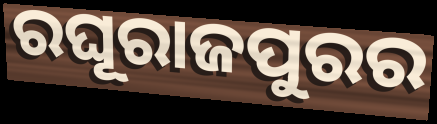
ରଘୂରାଜପୁରର